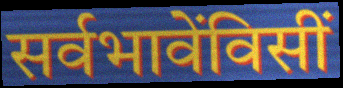
सर्वभावेंविसीं